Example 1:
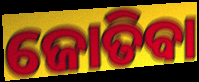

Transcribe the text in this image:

ଜୋତିବା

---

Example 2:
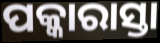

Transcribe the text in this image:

ପକ୍କାରାସ୍ତା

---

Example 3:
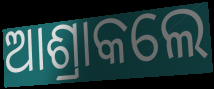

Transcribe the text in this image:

ଆଶ୍ରାକଲେ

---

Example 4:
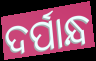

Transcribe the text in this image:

ଦର୍ପାନ୍ଧ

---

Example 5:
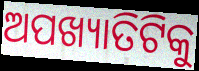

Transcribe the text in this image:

ଅପଖ୍ୟାତିଟିକୁ